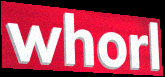
whorl